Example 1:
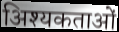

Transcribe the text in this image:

अिश्यकताओं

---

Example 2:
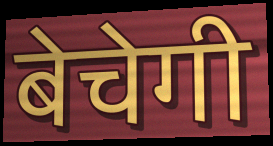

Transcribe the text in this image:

बेचेगी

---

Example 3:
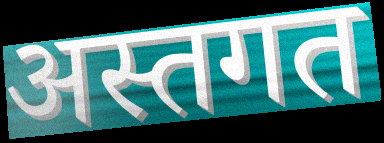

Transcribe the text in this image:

अस्तगत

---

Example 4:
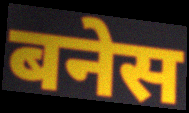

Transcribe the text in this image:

बनेस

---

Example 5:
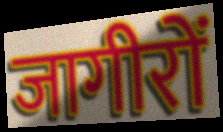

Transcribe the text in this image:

जागीरों